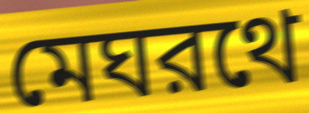
মেঘরথে